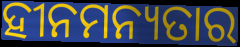
ହୀନମନ୍ୟତାର